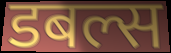
डबल्‍स